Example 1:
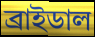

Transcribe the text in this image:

ব্রাইডাল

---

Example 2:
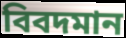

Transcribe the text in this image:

বিবদমান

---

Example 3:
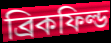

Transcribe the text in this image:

ব্রিকফিল্ড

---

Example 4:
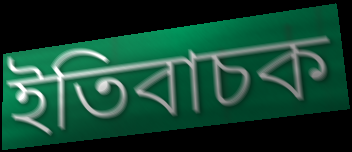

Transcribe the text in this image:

ইতিবাচক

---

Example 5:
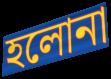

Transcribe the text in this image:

হলোনা